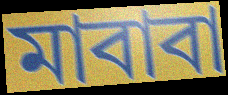
মাবাবা